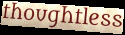
thoughtless